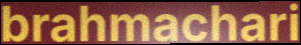
brahmachari